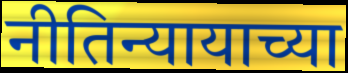
नीतिन्यायाच्या